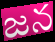
జన